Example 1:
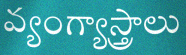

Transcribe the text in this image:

వ్యంగ్యాస్త్రాలు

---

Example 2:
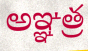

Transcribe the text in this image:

అఞ్ఞత్ర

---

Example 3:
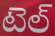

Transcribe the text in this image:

టెల్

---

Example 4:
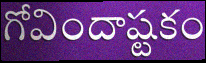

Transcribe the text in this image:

గోవిందాష్టకం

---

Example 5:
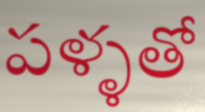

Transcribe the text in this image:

పళ్ళతో